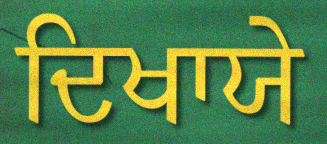
ਦਿਖਾਯੇ